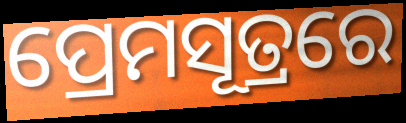
ପ୍ରେମସୂତ୍ରରେ